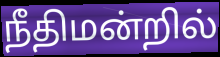
நீதிமன்றில்